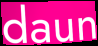
daun